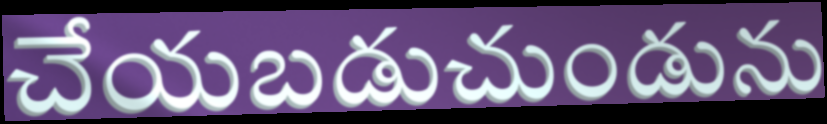
చేయబడుచుండును